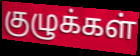
குழுக்கள்